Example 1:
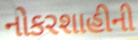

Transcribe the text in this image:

નોકરશાહીની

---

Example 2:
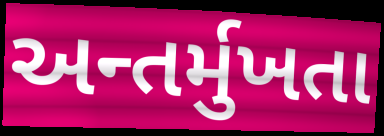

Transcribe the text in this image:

અન્તર્મુખતા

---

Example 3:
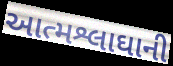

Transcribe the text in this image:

આત્મશ્લાઘાની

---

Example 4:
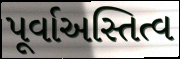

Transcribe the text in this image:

પૂર્વાઅસ્તિત્વ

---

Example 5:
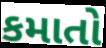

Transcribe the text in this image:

કમાતો